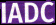
IADC